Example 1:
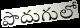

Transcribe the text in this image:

పొదుగులో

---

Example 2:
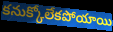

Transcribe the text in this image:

కనుక్కోలేకపోయాయి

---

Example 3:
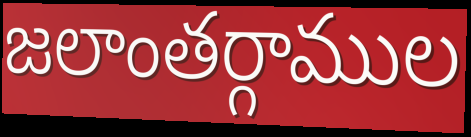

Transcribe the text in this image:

జలాంతర్గాముల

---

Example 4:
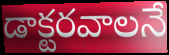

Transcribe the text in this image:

డాక్టరవాలనే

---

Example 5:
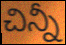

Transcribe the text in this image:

చిన్నీ